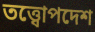
তত্ত্বোপদেশ